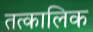
तत्कालिक